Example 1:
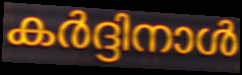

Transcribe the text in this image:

കർദ്ദിനാൾ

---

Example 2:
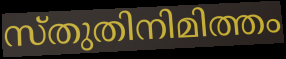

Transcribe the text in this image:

സ്തുതിനിമിത്തം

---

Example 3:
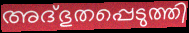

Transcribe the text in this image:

അദ്ഭുതപ്പെടുത്തി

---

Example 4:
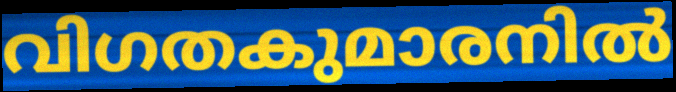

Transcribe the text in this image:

വിഗതകുമാരനിൽ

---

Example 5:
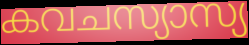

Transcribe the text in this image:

കവചസ്യാസ്യ